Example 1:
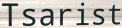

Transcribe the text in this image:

Tsarist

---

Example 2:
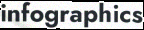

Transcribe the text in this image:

infographics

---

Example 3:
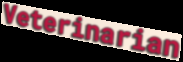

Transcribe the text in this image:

Veterinarian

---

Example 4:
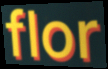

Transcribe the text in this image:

flor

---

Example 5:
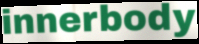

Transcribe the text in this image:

innerbody